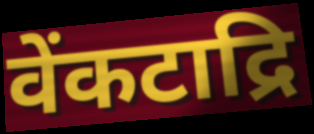
वेंकटाद्रि